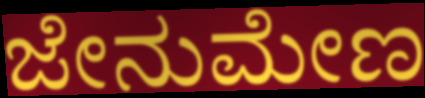
ಜೇನುಮೇಣ